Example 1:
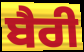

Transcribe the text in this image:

ਬੈਰੀ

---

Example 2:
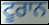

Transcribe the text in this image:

ਟੂਰਾਨ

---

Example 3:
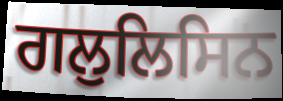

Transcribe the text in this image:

ਗਲੁਲਿਸਿਨ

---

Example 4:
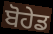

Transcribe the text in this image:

ਬੋਹੇਡ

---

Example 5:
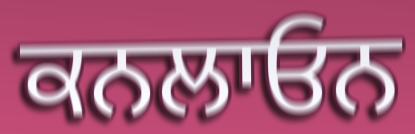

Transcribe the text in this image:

ਕਨਲਾਓਨ